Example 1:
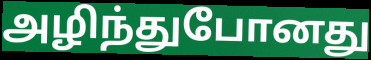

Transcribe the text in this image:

அழிந்துபோனது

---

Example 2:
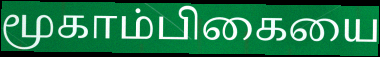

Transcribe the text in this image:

மூகாம்பிகையை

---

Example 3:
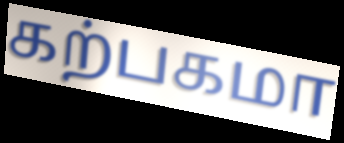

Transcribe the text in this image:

கற்பகமா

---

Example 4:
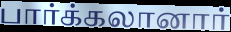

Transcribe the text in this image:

பார்க்கலானார்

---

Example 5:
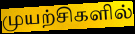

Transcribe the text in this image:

முயற்சிகளில்